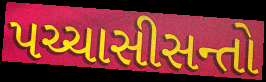
પચ્ચાસીસન્તો